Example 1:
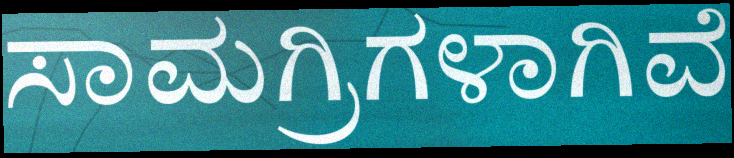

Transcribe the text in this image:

ಸಾಮಗ್ರಿಗಳಾಗಿವೆ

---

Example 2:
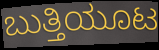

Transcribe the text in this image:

ಬುತ್ತಿಯೂಟ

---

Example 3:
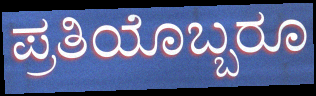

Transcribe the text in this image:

ಪ್ರತಿಯೊಬ್ಬರೂ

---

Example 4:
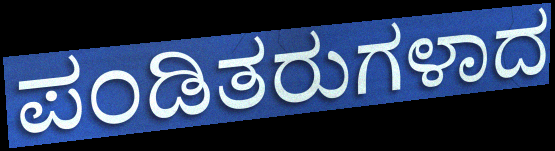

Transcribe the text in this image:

ಪಂಡಿತರುಗಳಾದ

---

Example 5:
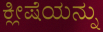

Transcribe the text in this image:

ಕ್ಲೀಷೆಯನ್ನು